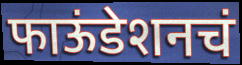
फाऊंडेशनचं